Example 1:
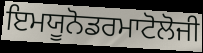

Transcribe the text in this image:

ਇਮਯੂਨੋਡਰਮਾਟੋਲੋਜੀ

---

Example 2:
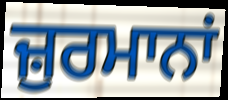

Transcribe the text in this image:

ਜ਼ੁਰਮਾਨਾਂ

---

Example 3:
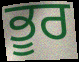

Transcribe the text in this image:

ਭੂਰ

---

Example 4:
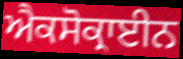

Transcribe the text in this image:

ਐਕਸੋਕ੍ਰਾਈਨ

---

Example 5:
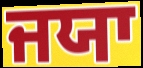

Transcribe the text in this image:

ਜਯਾ